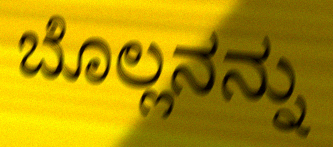
ಬೊಲ್ಲನನ್ನು